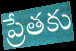
ప్రేతకు